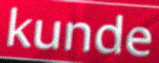
kunde